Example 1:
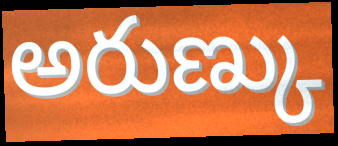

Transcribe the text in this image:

అరుణ్కు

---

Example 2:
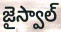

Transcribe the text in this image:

జైస్వాల్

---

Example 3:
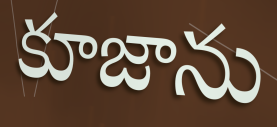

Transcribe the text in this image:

కూజాను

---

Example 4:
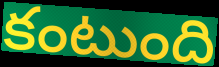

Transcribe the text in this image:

కంటుంది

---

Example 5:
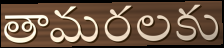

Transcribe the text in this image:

తామరలకు